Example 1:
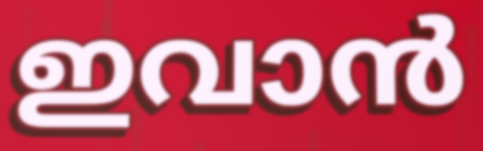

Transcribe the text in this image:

ഇവാൻ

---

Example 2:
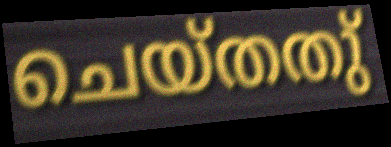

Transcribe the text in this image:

ചെയ്തതു്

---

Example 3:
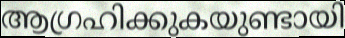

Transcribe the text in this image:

ആഗ്രഹിക്കുകയുണ്ടായി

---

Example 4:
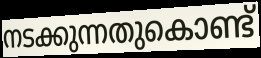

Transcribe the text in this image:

നടക്കുന്നതുകൊണ്ട്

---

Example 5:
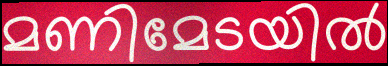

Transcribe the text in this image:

മണിമേടയിൽ